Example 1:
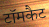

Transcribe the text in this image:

टॉमकैट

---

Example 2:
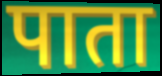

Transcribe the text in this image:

पाता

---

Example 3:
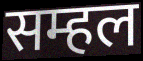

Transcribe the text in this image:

सम्हल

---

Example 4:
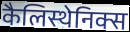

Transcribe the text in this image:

कैलिस्थेनिक्स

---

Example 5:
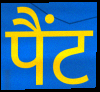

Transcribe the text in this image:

पैंट